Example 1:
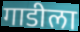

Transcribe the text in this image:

गाडीला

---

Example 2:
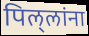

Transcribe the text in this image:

पिल्लांना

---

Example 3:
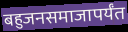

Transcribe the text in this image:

बहुजनसमाजापर्यंत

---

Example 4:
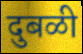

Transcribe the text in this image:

दुबळी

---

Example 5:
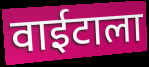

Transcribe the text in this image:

वाईटाला